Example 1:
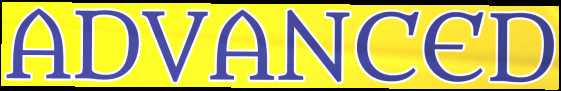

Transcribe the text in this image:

ADVANCED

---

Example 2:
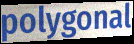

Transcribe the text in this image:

polygonal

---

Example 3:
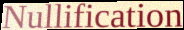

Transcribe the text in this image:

Nullification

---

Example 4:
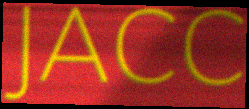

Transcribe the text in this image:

JACC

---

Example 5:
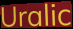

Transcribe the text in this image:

Uralic